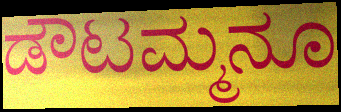
ಡೌಟಮ್ಮನೂ